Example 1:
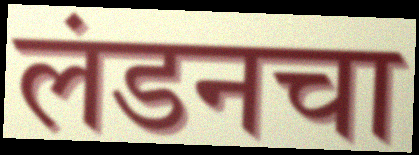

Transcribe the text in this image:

लंडनचा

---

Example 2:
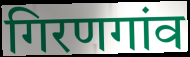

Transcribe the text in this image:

गिरणगांव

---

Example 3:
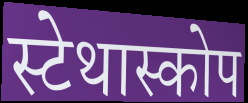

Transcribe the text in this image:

स्टेथास्कोप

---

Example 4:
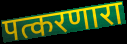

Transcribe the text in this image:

पत्करणारा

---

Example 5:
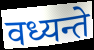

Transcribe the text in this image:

वध्यन्ते